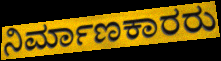
ನಿರ್ಮಾಣಕಾರರು